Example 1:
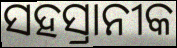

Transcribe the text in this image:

ସହସ୍ରାନୀକ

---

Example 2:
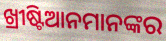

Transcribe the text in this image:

ଖ୍ରୀଷ୍ଟିଆନମାନଙ୍କର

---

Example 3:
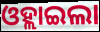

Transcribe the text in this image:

ଓହ୍ଲାଇଲା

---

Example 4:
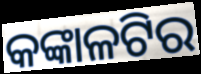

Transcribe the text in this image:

କଙ୍କାଳଟିର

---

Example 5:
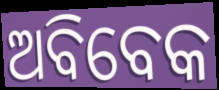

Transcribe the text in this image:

ଅବିବେକ